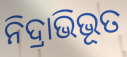
ନିଦ୍ରାଭିଭୂତ